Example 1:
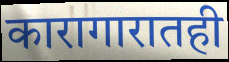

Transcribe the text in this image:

कारागारातही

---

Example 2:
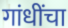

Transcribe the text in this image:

गांधींचा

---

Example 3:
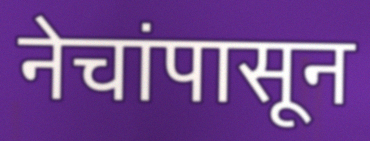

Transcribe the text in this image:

नेचांपासून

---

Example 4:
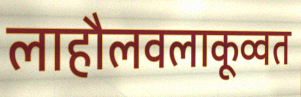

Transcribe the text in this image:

लाहौलवलाकूव्वत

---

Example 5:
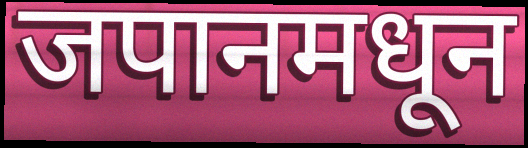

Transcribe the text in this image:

जपानमधून